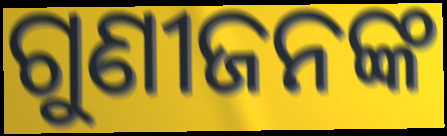
ଗୁଣୀଜନଙ୍କ